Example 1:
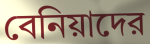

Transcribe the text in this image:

বেনিয়াদের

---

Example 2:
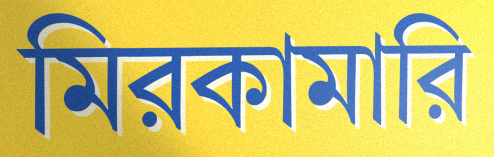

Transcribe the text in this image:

মিরকামারি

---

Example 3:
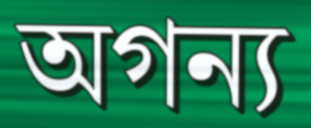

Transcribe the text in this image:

অগন্য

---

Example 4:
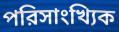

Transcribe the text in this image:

পরিসাংখ্যিক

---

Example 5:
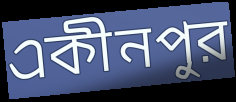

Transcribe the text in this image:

একীনপুর